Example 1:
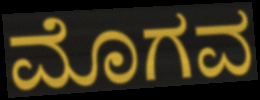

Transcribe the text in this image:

ಮೊಗವ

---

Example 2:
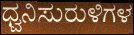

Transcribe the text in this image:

ಧ್ವನಿಸುರುಳಿಗಳ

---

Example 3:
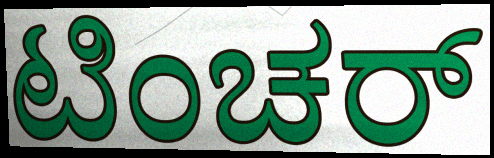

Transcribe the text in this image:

ಟಿಂಚರ್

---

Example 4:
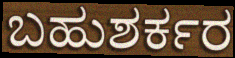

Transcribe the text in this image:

ಬಹುಶರ್ಕರ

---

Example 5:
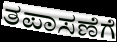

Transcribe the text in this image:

ತಪಾಸಣೆಗೆ